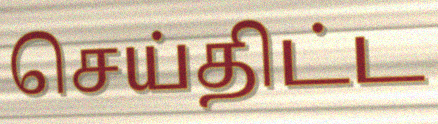
செய்திட்ட